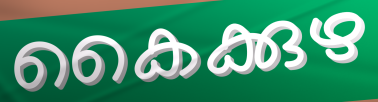
കൈക്കുഴ